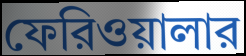
ফেরিওয়ালার